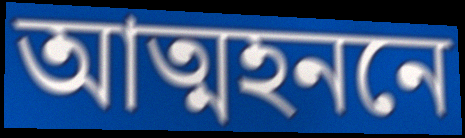
আত্মহননে